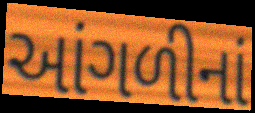
આંગળીનાં